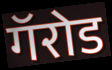
गॅरोड